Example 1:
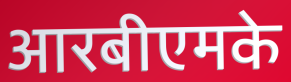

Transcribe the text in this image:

आरबीएमके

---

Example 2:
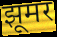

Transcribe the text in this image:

झूमर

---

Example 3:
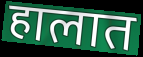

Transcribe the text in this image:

हालात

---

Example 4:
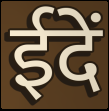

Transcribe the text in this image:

ईदें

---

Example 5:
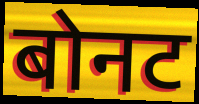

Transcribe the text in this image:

बोनट